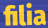
filia